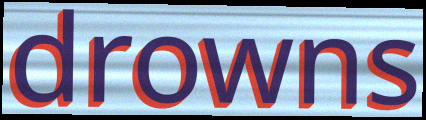
drowns